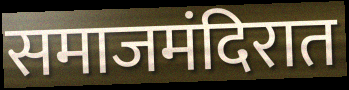
समाजमंदिरात